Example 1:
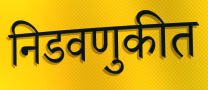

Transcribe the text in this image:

निडवणुकीत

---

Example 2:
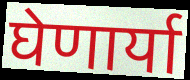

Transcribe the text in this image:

घेणार्या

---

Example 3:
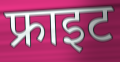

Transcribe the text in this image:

फ्राइट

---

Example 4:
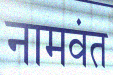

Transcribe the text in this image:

नामवंत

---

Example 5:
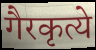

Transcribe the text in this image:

गैरकृत्ये